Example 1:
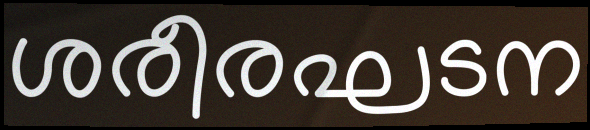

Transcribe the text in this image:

ശരീരഘടന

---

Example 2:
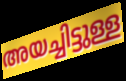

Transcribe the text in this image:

അയച്ചിട്ടുള്ള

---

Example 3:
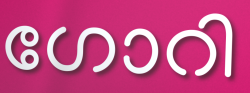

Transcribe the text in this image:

ഗോറി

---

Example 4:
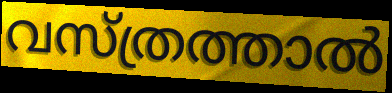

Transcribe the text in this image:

വസ്ത്രത്താൽ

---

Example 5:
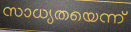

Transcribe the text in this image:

സാധ്യതയെന്ന്